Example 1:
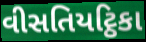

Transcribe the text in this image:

વીસતિયટ્ઠિકા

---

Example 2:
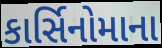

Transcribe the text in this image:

કાર્સિનોમાના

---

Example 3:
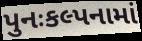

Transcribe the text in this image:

પુનઃકલ્પનામાં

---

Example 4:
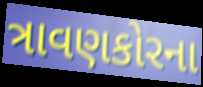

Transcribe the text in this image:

ત્રાવણકોરના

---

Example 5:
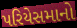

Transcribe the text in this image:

પરિયેસમાનો